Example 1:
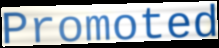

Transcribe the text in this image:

Promoted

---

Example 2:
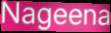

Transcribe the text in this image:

Nageena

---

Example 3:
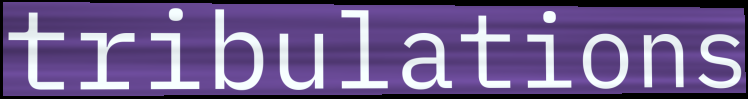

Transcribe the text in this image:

tribulations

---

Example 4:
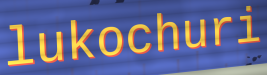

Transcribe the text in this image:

lukochuri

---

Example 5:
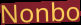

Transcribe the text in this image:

Nonbo